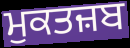
ਮੁਕਤਜ਼ਬ